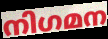
നിഗമന